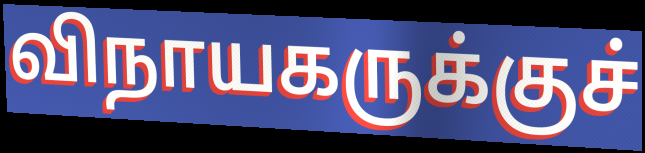
விநாயகருக்குச்